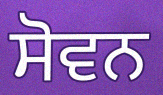
ਸੋਵਨ